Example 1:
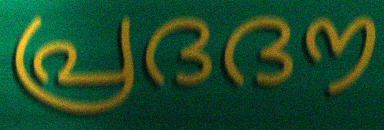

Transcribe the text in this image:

പ്രദദൗ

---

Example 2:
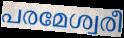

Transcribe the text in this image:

പരമേശ്വരീ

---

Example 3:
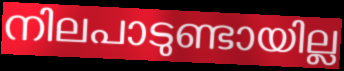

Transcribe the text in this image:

നിലപാടുണ്ടായില്ല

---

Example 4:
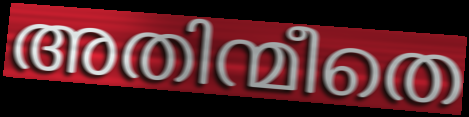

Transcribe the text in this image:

അതിന്മീതെ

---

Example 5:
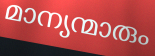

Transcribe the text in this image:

മാന്യന്മാരും